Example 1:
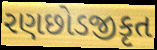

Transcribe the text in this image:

રણછોડજીકૃત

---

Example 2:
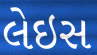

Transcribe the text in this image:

લેઇસ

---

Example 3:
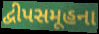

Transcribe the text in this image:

દ્વીપસમૂહના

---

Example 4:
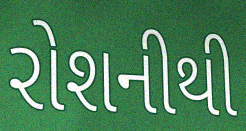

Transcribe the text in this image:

રોશનીથી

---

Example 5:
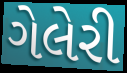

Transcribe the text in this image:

ગેલેરી